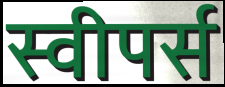
स्वीपर्स